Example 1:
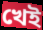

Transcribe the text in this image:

খেই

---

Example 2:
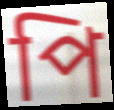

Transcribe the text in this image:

পি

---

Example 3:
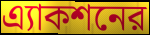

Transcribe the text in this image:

এ্যাকশনের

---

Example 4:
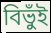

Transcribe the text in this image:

বিভুঁই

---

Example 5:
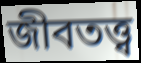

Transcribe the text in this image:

জীবতত্ত্ব